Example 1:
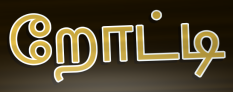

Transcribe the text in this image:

றோட்டி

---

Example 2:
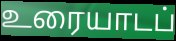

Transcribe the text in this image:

உரையாடப்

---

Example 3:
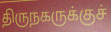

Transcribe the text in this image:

திருநகருக்குச்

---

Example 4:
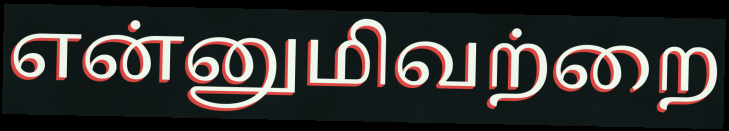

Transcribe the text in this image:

என்னுமிவற்றை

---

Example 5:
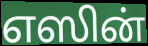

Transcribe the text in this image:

எஸின்